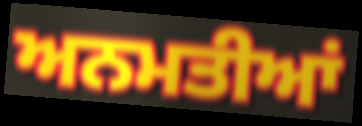
ਅਨਮਤੀਆਂ